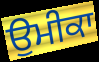
ਉਮੀਕਾ